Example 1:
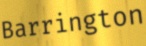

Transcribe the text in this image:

Barrington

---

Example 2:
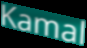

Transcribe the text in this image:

Kamal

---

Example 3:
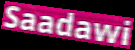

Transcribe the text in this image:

Saadawi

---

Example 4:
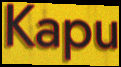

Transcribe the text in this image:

Kapu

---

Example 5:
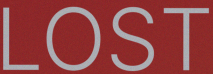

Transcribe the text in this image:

LOST